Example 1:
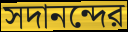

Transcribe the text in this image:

সদানন্দের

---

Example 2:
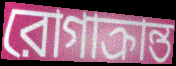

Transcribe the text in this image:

রোগাক্রান্ত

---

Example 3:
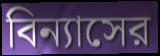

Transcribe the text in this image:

বিন্যাসের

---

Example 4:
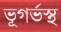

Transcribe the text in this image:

ভূগর্ভস্থ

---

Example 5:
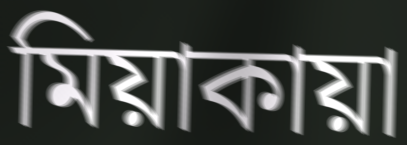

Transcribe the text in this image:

মিয়াকায়া